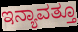
ಇನ್ಯಾವತ್ತೂ